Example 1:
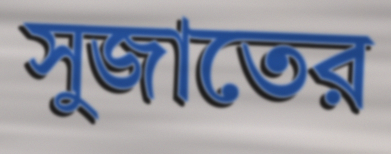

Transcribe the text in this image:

সুজাতের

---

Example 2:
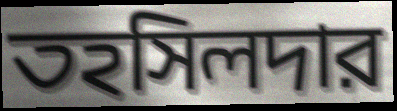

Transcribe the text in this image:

তহসিলদার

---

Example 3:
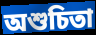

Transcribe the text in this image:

অশুচিতা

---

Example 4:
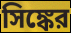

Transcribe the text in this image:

সিঙ্কের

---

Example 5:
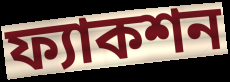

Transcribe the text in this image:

ফ্যাকশন